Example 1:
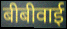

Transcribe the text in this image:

बीबीवाई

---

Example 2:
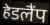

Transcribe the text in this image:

हेडलैंप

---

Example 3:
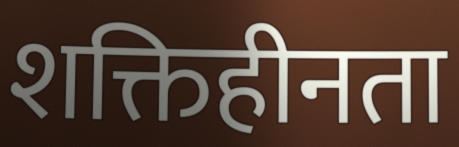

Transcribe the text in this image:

शक्तिहीनता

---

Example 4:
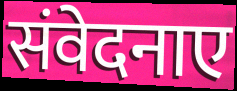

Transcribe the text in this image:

संवेदनाए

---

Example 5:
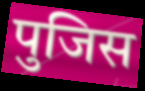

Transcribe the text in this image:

पुजिस